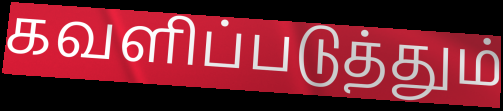
கவளிப்படுத்தும்